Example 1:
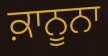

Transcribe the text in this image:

ਕ਼ਾਨੂਨਾ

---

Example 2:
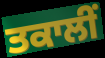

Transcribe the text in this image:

ਤਕਾਲੀਂ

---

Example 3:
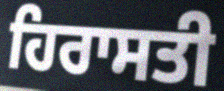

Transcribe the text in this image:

ਹਿਰਾਸਤੀ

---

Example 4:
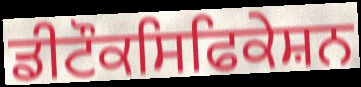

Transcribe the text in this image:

ਡੀਟੌਕਸਿਫਿਕੇਸ਼ਨ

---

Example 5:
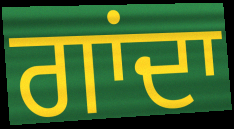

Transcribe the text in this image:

ਗਾਂਦਾ